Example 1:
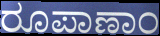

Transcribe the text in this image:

ರೂಪಾಣಾಂ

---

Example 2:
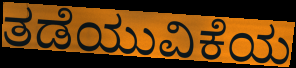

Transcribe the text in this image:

ತಡೆಯುವಿಕೆಯ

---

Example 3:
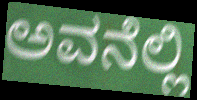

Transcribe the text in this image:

ಅವನೆಲ್ಲಿ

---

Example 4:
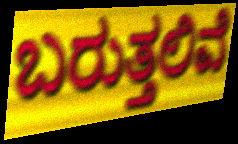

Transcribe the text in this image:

ಬರುತ್ತಲಿವೆ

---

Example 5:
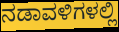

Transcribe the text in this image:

ನಡಾವಳಿಗಳಲ್ಲಿ